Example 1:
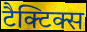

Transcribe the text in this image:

टैक्टिक्स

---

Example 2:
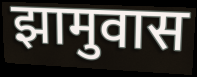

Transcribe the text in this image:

झामुवास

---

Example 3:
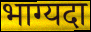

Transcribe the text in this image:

भाग्यदा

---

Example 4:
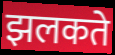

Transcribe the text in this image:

झलकते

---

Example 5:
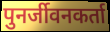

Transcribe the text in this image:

पुनर्जीवनकर्ता